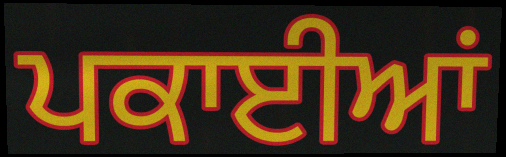
ਪਕਾਈਆਂ